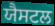
ਯੈਸਟਲ